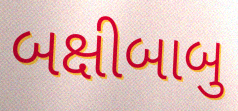
બક્ષીબાબુ